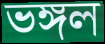
ভঙ্গল